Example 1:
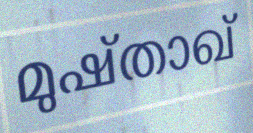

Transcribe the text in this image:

മുഷ്താഖ്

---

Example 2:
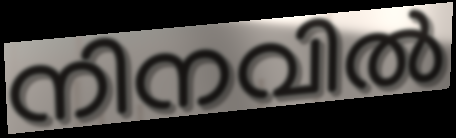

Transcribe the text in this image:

നിനവിൽ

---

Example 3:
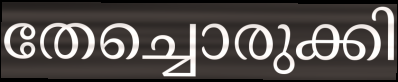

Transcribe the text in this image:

തേച്ചൊരുക്കി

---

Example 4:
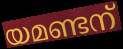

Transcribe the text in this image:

യമണ്ടന്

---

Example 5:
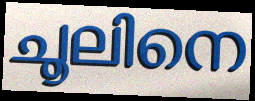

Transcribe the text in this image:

ചൂലിനെ